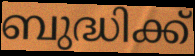
ബുദ്ധിക്ക്